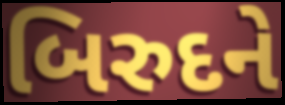
બિરુદને